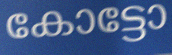
കോട്ടോ